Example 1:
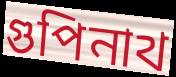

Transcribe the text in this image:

গুপিনাথ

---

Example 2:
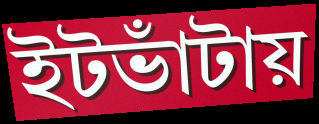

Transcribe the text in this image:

ইটভাঁটায়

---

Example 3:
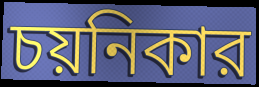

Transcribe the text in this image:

চয়নিকার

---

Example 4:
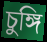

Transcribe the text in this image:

চুঙ্গি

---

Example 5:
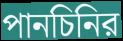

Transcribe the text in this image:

পানচিনির